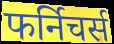
फर्निचर्स